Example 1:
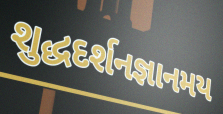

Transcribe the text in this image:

શુદ્ધદર્શનજ્ઞાનમય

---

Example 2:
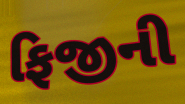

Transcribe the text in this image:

ફિજીની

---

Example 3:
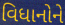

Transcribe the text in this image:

વિધાનોને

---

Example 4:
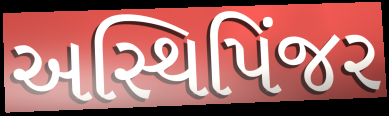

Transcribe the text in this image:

અસ્થિપિંજર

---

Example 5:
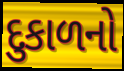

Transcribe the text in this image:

દુકાળનો